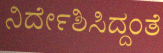
ನಿರ್ದೇಶಿಸಿದ್ದಂತೆ